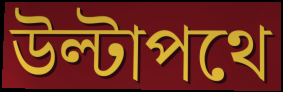
উল্টাপথে